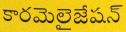
కారమెలైజేషన్